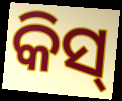
କିସ୍